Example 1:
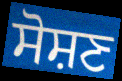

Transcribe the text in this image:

ਸੋਸ਼ਣ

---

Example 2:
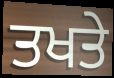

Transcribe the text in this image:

ਤਖਤੇ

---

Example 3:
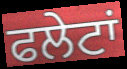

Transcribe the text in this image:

ਫਲੇਟਾਂ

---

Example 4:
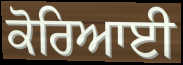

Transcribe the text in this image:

ਕੋਰਿਆਈ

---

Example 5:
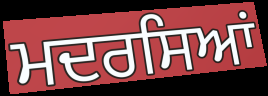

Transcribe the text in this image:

ਮਦਰਸਿਆਂ